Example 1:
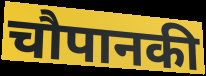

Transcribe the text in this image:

चौपानकी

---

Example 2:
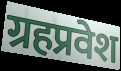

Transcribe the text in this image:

ग्रहप्रवेश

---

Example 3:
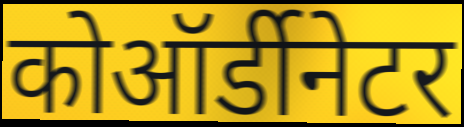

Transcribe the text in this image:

कोऑर्डीनेटर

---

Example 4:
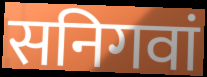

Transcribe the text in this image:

सनिगवां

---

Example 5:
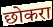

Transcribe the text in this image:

छोकरा